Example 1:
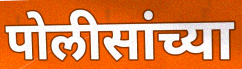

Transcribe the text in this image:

पोलीसांच्या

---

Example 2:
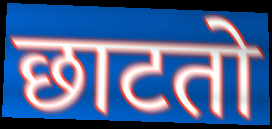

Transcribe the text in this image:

छाटतो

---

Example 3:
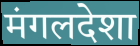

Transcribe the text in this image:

मंगलदेशा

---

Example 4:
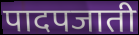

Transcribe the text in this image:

पादपजाती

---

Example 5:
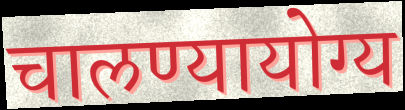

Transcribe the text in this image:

चालण्यायोग्य